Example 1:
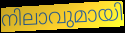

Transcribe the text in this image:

നിലാവുമായി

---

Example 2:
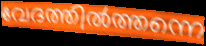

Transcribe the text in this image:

വേദത്തിൽത്തന്നെ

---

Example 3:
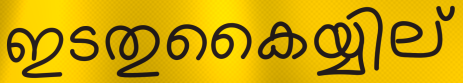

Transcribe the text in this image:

ഇടതുകൈയ്യില്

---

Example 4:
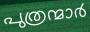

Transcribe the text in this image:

പുത്രന്മാർ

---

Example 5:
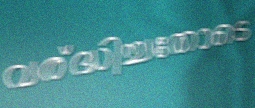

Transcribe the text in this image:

വര്ദ്ധിച്ചതോടെ